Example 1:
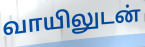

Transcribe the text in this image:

வாயிலுடன்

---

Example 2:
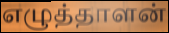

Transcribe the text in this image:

எழுத்தாளன்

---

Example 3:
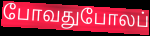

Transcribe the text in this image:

போவதுபோலப்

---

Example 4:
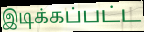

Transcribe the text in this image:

இடிக்கப்பட்ட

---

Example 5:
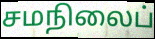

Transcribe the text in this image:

சமநிலைப்